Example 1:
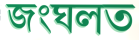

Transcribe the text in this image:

জংঘলত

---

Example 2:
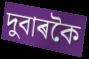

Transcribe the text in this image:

দুবাৰকৈ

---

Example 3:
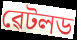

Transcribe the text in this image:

ৱেটলড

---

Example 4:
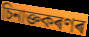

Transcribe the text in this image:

চিনাক্তকৰণৰ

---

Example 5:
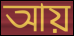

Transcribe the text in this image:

আয়